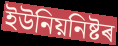
ইউনিয়নিষ্টৰ